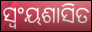
ସ୍ୱଂୟଶାସିତ